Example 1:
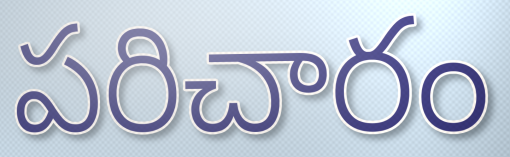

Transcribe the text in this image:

పరిచారం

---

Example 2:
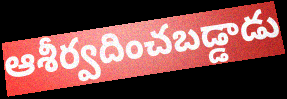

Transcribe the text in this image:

ఆశీర్వదించబడ్డాడు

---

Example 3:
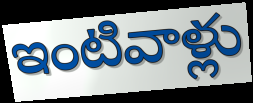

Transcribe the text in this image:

ఇంటివాళ్లు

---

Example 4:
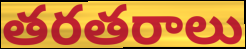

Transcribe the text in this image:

తరతరాలు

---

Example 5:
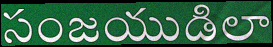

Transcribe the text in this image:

సంజయుడిలా